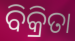
ବିକ୍ରିତା